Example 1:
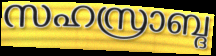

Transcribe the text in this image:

സഹസ്രാബ്ദ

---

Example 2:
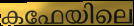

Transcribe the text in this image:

കഫേയിലെ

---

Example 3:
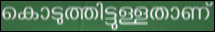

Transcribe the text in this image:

കൊടുത്തിട്ടുള്ളതാണ്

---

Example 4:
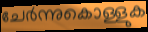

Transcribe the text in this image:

ചേർന്നുകൊള്ളുക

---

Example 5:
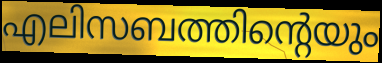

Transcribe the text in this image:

എലിസബത്തിന്റെയും